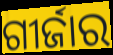
ଗୀର୍ଜାର